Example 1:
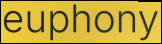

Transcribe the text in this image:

euphony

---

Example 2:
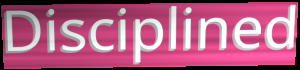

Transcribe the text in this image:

Disciplined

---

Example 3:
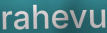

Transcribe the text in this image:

rahevu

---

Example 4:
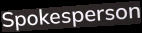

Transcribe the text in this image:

Spokesperson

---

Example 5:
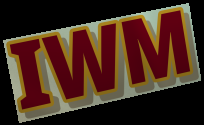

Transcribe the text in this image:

IWM